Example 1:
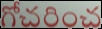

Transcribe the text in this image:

గోచరించ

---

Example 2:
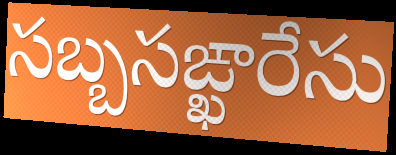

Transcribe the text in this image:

సబ్బసఙ్ఖారేసు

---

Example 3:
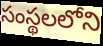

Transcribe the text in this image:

సంస్థలలోని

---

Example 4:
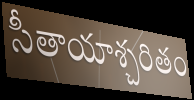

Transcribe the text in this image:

సీతాయాశ్చరితం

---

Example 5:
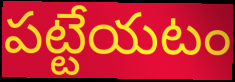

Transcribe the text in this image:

పట్టేయటం